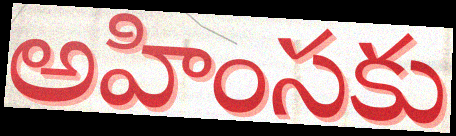
అహింసకు